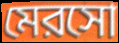
মেরসো